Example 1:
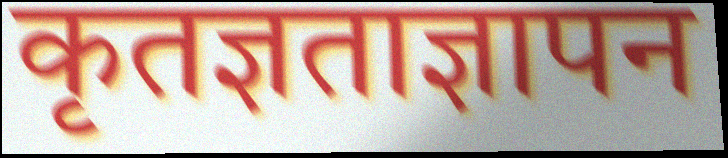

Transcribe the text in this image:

कृतज्ञताज्ञापन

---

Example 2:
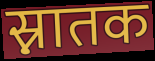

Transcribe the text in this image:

स्नातक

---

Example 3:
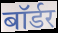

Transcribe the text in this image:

बॉर्डर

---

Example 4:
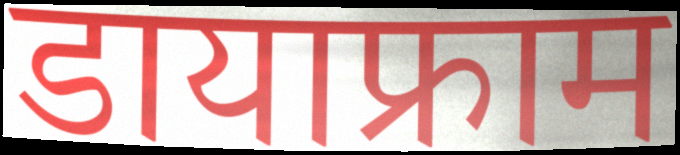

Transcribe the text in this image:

डायाफ्राम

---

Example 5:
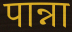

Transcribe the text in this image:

पान्ना